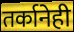
तर्कानेही